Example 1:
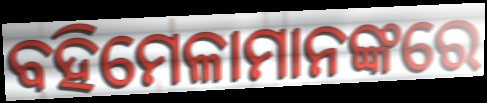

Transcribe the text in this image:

ବହିମେଳାମାନଙ୍କରେ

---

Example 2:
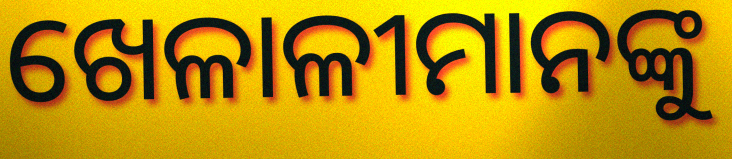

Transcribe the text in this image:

ଖେଳାଳୀମାନଙ୍କୁ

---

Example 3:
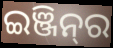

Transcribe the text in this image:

ଇଞ୍ଜିନ୍‍ର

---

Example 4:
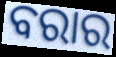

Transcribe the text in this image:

ବରାର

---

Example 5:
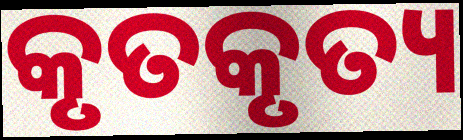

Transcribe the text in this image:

କୃତକୃତ୍ୟ